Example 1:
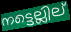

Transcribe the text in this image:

നട്ടെല്ലില്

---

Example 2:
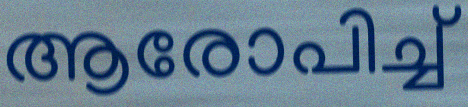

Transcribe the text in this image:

ആരോപിച്ച്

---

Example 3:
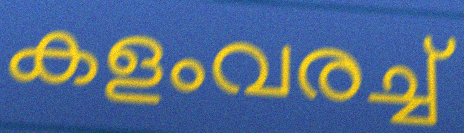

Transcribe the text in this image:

കളംവരച്ച്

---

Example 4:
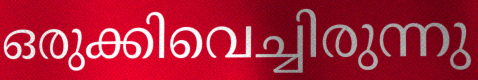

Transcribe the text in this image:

ഒരുക്കിവെച്ചിരുന്നു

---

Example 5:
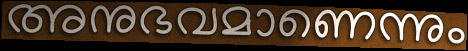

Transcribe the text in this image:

അനുഭവമാണെന്നും